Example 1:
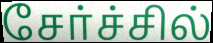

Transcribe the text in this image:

சேர்ச்சில்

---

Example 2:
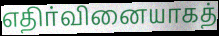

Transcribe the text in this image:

எதிர்வினையாகத்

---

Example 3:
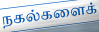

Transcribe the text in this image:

நகல்களைக்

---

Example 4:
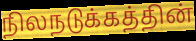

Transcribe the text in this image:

நிலநடுக்கத்தின்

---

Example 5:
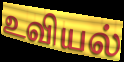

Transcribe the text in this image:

உவியல்